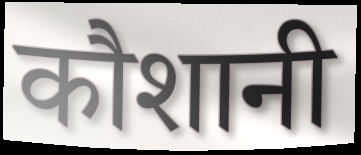
कौशानी